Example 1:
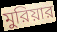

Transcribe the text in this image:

মুরিয়ার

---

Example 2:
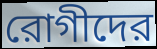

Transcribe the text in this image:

রোগীদের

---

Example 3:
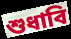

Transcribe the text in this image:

শুধাবি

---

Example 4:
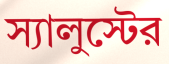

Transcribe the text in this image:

স্যালুস্টের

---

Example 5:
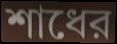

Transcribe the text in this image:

শাধের